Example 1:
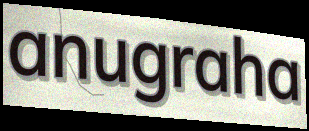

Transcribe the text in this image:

anugraha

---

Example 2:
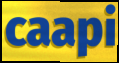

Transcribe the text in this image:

caapi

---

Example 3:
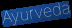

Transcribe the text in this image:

Ayurveda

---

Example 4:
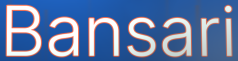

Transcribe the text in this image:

Bansari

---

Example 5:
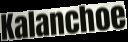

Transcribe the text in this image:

Kalanchoe